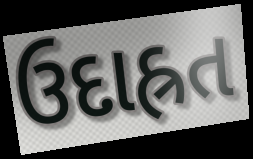
ઉદાહ્રત